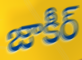
జాకీర్